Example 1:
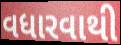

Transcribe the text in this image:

વધારવાથી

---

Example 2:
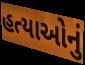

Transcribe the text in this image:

હત્યાઓનું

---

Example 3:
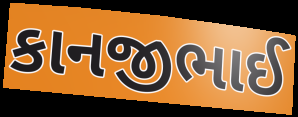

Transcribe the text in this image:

કાનજીભાઈ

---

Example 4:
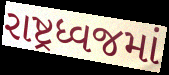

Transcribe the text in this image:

રાષ્ટ્રધ્વજમાં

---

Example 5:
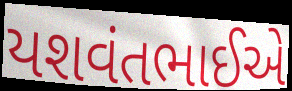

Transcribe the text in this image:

યશવંતભાઈએ